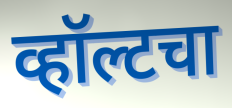
व्हॉल्टचा